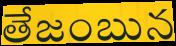
తేజంబున